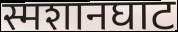
स्मशानघाट